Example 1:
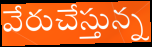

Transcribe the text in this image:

వేరుచేస్తున్న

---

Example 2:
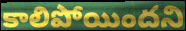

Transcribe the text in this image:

కాలిపోయిందని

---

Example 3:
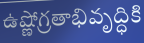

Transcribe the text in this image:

ఉష్ణోగ్రతాభివృద్ధికి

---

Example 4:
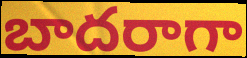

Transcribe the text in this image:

బాదరాగా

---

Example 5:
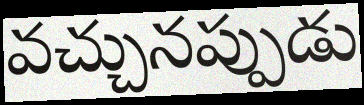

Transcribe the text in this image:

వచ్చునప్పుడు